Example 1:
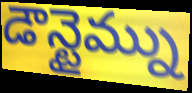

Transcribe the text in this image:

డౌన్టైమ్ను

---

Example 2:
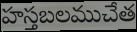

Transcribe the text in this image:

హస్తబలముచేత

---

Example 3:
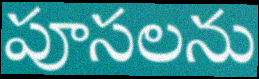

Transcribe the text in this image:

పూసలను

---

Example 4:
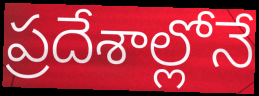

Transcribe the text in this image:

ప్రదేశాల్లోనే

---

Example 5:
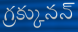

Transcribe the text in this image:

గ్రక్కునన్